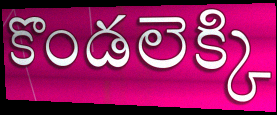
కొండలెక్కి